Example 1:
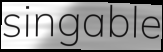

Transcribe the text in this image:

singable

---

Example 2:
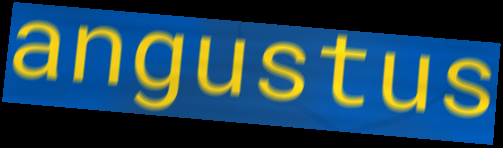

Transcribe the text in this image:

angustus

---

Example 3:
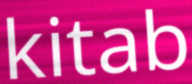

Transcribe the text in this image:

kitab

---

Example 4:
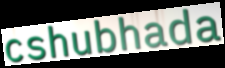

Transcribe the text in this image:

cshubhada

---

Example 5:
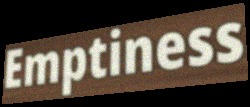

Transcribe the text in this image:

Emptiness